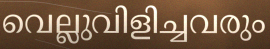
വെല്ലുവിളിച്ചവരും